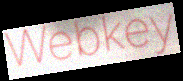
Webkey